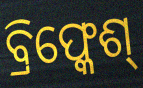
ବ୍ରିଫ୍କେଶ୍